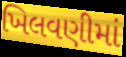
ખિલવણીમાં